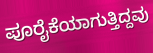
ಪೂರೈಕೆಯಾಗುತ್ತಿದ್ದವು